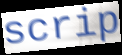
scrip